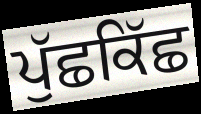
ਪੁੱਛਕਿੱਛ